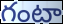
గంటా